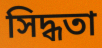
সিদ্ধতা